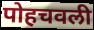
पोहचवली